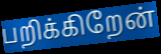
பறிக்கிறேன்